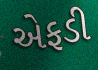
એફડી